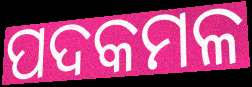
ପଦକମଳ